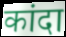
कांदा